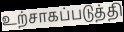
உற்சாகப்படுத்தி